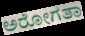
ಅರೋಗತಾ